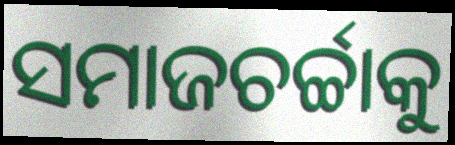
ସମାଜଚର୍ଚ୍ଚାକୁ